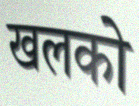
खलको